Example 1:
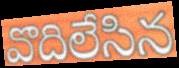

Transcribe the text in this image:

వొదిలేసిన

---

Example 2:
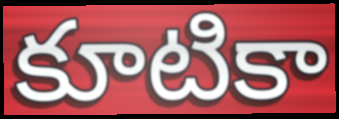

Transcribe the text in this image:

కూటికా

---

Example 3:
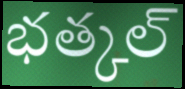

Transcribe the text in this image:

భత్కల్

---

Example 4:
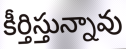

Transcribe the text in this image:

కీర్తిస్తున్నావు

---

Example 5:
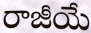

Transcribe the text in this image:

రాజీయే